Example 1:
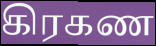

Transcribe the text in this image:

கிரகண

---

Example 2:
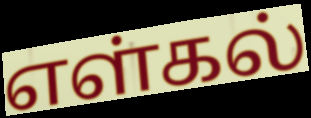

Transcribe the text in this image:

எள்கல்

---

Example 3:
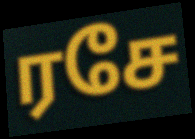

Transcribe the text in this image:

ரசே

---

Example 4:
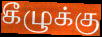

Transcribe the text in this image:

கீழுக்கு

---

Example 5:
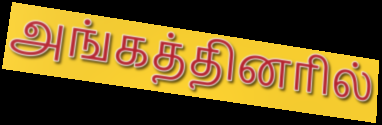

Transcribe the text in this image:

அங்கத்தினரில்